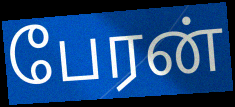
பேரன்